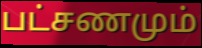
பட்சணமும்